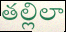
తల్లిలా